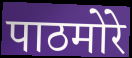
पाठमोरे